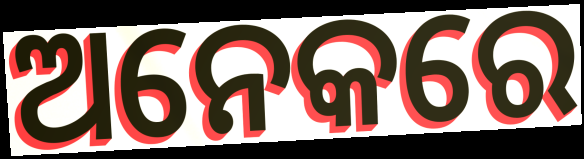
ଅନେକରେ